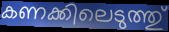
കണക്കിലെടുത്തു്